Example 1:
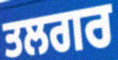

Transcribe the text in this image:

ਤਲਗਰ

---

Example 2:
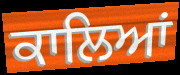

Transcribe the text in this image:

ਕਾਲਿਆਂ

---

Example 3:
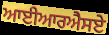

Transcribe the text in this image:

ਆਈਆਰਐਸਏ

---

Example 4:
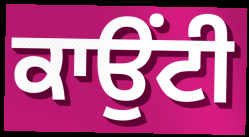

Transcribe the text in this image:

ਕਾਉਂਟੀ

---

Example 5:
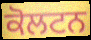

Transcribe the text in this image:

ਕੋਲਟਨ